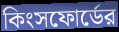
কিংসফোর্ডের